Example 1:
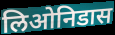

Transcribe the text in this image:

लिओनिडास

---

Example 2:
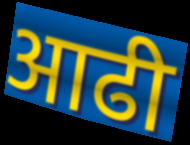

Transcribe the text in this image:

आढी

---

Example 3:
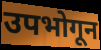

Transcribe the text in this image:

उपभोगून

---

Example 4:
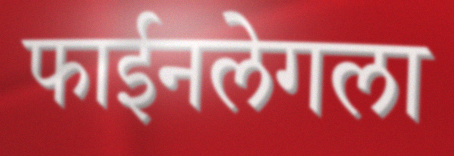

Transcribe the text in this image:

फाईनलेगला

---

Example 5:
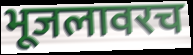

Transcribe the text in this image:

भूजलावरच